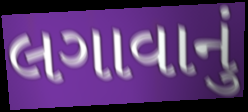
લગાવાનું